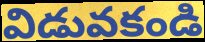
విడువకండి